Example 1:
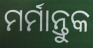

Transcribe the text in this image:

ମର୍ମାନ୍ତୁକ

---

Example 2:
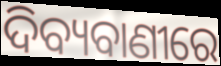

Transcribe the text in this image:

ଦିବ୍ୟବାଣୀରେ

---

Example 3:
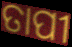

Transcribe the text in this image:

ତାପୀ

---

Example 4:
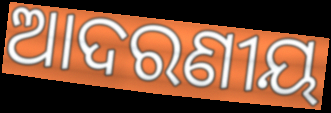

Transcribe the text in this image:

ଆଦରଣୀୟ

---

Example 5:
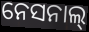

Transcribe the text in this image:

ନେସନାଲ୍